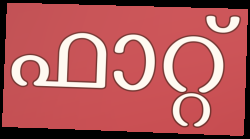
ഫാറ്റ്